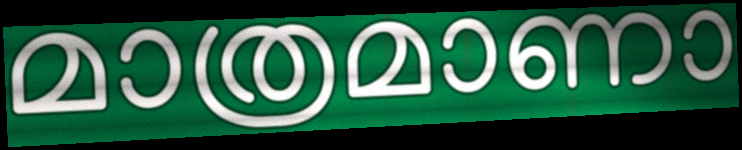
മാത്രമാണാ